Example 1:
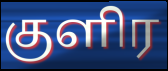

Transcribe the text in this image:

குளிர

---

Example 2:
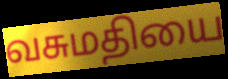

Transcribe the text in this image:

வசுமதியை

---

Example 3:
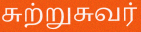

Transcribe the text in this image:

சுற்றுசுவர்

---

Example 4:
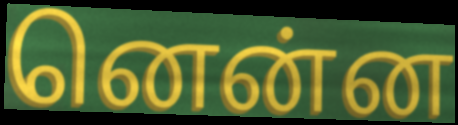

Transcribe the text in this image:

னென்ன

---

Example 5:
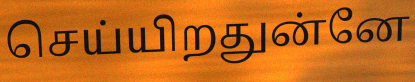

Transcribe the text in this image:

செய்யிறதுன்னே